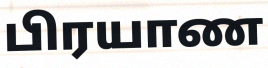
பிரயாண